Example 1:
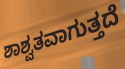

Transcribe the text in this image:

ಶಾಶ್ವತವಾಗುತ್ತದೆ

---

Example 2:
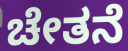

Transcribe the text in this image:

ಚೇತನೆ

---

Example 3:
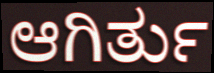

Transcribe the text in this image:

ಆಗಿರ್ತು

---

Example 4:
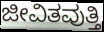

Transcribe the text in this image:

ಜೀವಿತವುತ್ತಿ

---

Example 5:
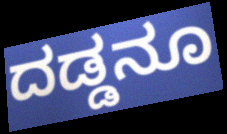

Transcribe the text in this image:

ದಡ್ಡನೂ